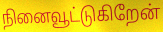
நினைவூட்டுகிறேன்